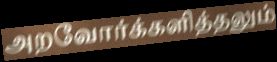
அறவோர்க்களித்தலும்